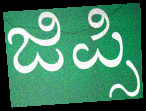
ಜಿಪ್ಸಿ